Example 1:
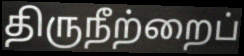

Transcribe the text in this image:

திருநீற்றைப்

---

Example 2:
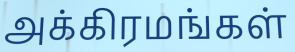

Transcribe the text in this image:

அக்கிரமங்கள்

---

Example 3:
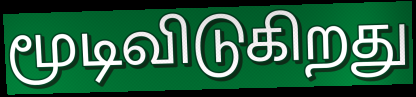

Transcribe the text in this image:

மூடிவிடுகிறது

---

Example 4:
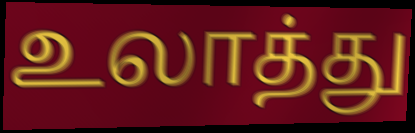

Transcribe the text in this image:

உலாத்து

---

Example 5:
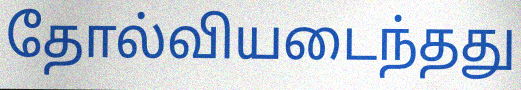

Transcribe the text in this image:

தோல்வியடைந்தது